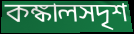
কঙ্কালসদৃশ